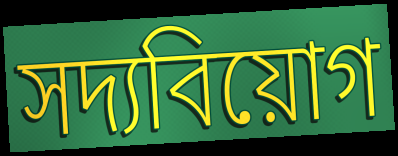
সদ্যবিয়োগ